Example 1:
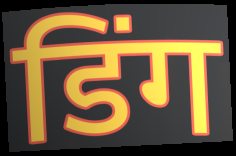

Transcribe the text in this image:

डिंग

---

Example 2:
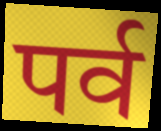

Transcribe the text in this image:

पर्व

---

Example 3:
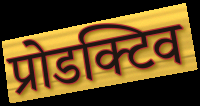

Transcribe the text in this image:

प्रोडक्टिव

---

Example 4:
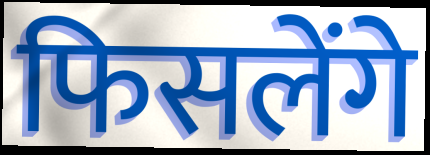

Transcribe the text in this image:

फिसलेंगे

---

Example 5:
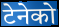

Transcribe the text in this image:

टेनेको